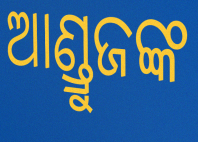
ଆଣ୍ଡ୍ରୁଜଙ୍କ